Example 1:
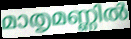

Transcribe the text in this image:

മാതൃമണ്ണിൽ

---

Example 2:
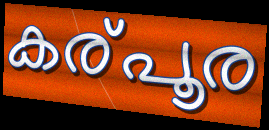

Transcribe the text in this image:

കര്പൂര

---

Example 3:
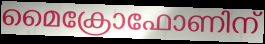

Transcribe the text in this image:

മൈക്രോഫോണിന്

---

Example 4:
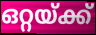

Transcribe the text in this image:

ഒറ്റയ്ക്ക്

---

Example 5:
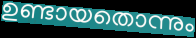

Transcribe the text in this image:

ഉണ്ടായതൊന്നും